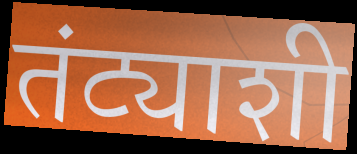
तंट्याशी